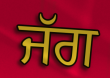
ਜੱਗ